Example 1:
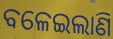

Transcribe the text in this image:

ବଳେଇଲାଣି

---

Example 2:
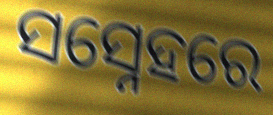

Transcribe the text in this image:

ସସ୍ନେହରେ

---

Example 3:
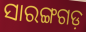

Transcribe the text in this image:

ସାରଙ୍ଗଗଡ଼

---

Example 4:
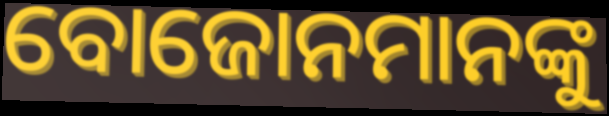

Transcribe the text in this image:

ବୋଜୋନମାନଙ୍କୁ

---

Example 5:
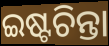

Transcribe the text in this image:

ଇଷ୍ଟଚିନ୍ତା